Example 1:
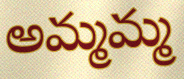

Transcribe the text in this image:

అమ్మమ్మ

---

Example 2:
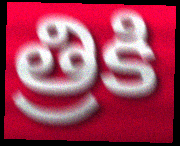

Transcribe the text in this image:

త్రికి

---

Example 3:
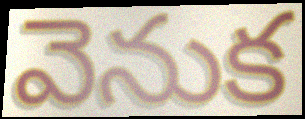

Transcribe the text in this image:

వెనుక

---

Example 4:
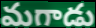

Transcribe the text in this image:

మగాడు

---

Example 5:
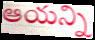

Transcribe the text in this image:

ఆయన్ని